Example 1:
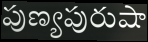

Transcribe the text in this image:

పుణ్యపురుషా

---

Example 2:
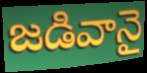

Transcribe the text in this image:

జడివానై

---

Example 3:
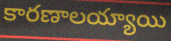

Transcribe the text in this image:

కారణాలయ్యాయి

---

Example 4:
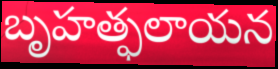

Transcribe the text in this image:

బృహత్ఫలాయన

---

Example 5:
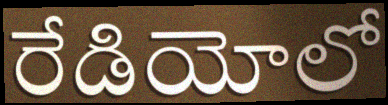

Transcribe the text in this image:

రేడియోలో